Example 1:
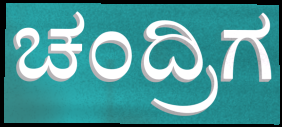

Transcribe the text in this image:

ಚಂದ್ರಿಗ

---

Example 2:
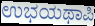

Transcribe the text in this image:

ಉಭಯಥಾಪಿ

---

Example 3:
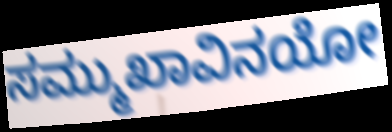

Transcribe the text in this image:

ಸಮ್ಮುಖಾವಿನಯೋ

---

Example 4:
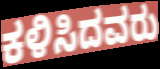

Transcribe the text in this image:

ಕಳಿಸಿದವರು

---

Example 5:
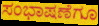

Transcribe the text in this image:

ಸಂಭಾಷಣೆಗೂ